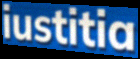
iustitia